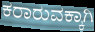
ಕರಾರುವಕ್ಕಾಗಿ